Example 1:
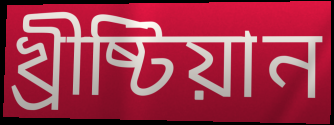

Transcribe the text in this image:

খ্ৰীষ্টিয়ান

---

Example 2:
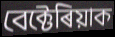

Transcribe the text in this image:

বেক্টেৰিয়াক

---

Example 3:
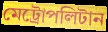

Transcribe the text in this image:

মেট্ৰোপলিটান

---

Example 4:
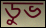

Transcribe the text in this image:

ডুভ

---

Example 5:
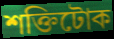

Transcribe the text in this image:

শক্তিটোক